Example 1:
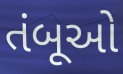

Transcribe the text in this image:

તંબૂઓ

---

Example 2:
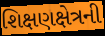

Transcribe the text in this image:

શિક્ષણક્ષેત્રની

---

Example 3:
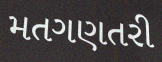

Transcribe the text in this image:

મતગણતરી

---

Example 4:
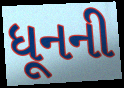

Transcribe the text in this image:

ધૂનની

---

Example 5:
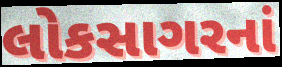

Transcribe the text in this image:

લોકસાગરનાં